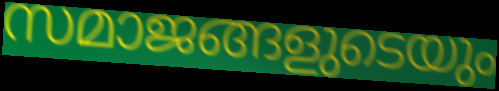
സമാജങ്ങളുടെയും